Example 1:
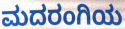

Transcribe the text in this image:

ಮದರಂಗಿಯ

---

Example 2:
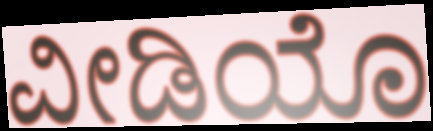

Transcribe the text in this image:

ವೀಡಿಯೊ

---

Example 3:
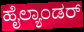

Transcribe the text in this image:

ಹೈಲ್ಯಾಂಡರ್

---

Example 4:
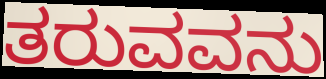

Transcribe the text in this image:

ತರುವವನು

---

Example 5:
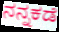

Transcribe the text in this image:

ನನ್ನಕಡೆ